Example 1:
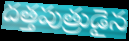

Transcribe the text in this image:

దత్తపుత్రుడైన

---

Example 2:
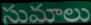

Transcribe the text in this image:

సుమాలు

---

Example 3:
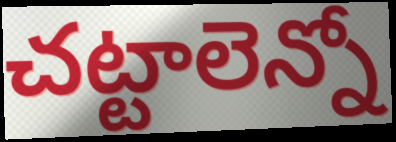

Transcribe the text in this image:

చట్టాలెన్నో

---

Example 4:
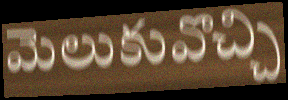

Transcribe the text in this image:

మెలుకువొచ్చి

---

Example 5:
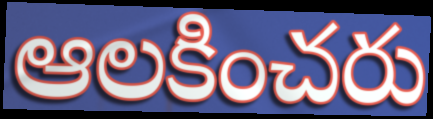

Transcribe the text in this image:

ఆలకించరు